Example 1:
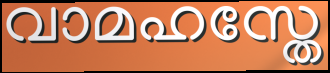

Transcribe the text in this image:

വാമഹസ്തേ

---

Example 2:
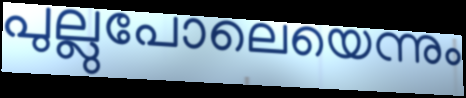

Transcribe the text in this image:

പുല്ലുപോലെയെന്നും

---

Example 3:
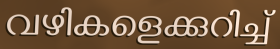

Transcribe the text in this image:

വഴികളെക്കുറിച്ച്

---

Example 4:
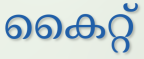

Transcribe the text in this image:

കൈറ്റ്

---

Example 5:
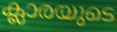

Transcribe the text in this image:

ക്ലാരയുടെ